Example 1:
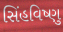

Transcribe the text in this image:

સિંહવિષ્ણુ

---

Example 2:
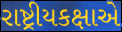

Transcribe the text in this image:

રાષ્ટ્રીયકક્ષાએ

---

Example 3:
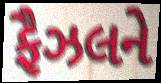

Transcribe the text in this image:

ફૈઝલને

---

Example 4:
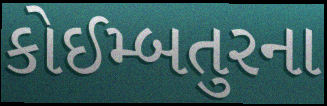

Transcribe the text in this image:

કોઈમ્બતુરના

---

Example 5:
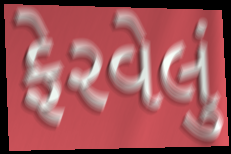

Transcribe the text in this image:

ફેરવેલું